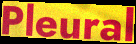
Pleural